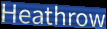
Heathrow